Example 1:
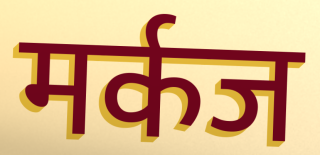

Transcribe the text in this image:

मर्कज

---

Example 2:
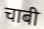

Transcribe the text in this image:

चाबी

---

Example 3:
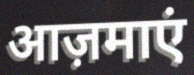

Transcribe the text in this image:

आज़माएं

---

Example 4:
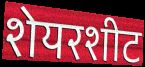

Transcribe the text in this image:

शेयरशीट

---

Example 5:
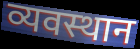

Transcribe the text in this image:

व्यवस्थान